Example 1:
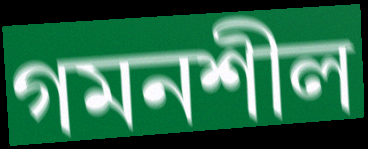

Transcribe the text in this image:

গমনশীল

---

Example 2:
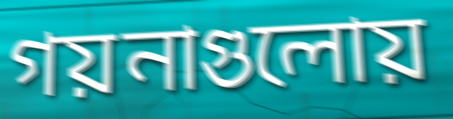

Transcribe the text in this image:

গয়নাগুলোয়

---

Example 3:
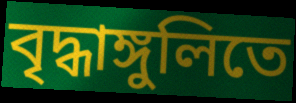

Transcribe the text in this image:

বৃদ্ধাঙ্গুলিতে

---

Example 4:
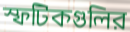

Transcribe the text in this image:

স্ফটিকগুলির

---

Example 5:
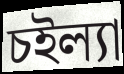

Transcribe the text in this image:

চইল্যা